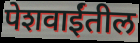
पेशवाईंतील